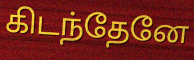
கிடந்தேனே